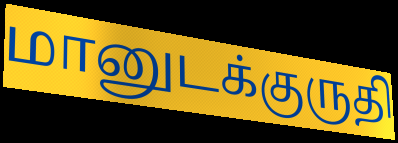
மானுடக்குருதி